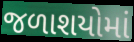
જળાશયોમાં